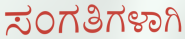
ಸಂಗತಿಗಳಾಗಿ